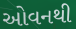
ઓવનથી